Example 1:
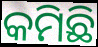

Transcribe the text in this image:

କମିଛି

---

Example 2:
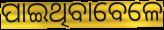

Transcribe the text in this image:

ପାଇଥିବାବେଳେ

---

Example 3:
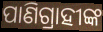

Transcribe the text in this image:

ପାଣିଗ୍ରାହୀଙ୍କ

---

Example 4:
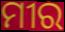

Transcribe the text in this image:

ମୀର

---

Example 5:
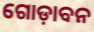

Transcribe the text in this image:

ଗୋଡ଼ାବନ